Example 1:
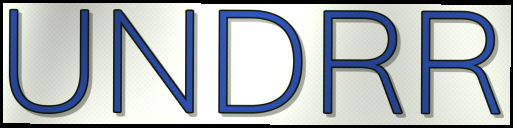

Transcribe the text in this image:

UNDRR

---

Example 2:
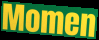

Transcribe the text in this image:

Momen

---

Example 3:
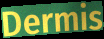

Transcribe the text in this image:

Dermis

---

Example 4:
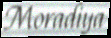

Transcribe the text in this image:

Moradiya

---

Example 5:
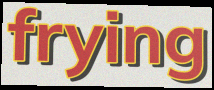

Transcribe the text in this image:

frying